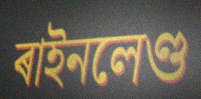
ৰাইনলেণ্ড